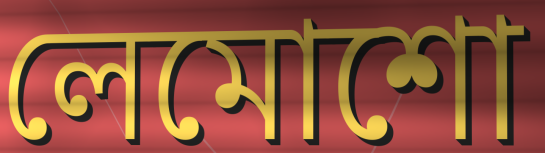
লেমোশো